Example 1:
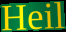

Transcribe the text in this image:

Heil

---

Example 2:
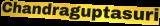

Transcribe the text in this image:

Chandraguptasuri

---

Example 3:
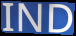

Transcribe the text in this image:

IND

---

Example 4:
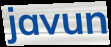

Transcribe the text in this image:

javun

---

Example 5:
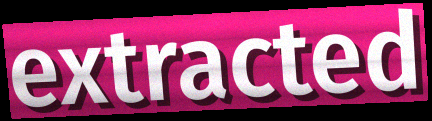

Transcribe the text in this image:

extracted